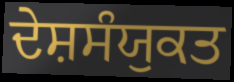
ਦੇਸ਼ਸੰਯੁਕਤ